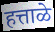
हत्ताळे